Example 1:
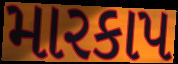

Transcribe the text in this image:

મારકાપ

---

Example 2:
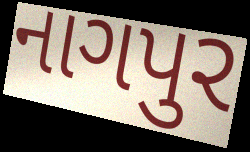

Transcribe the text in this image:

નાગપુર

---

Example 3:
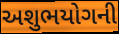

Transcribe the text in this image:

અશુભયોગની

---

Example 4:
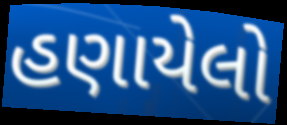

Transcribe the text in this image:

હણાયેલો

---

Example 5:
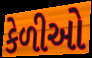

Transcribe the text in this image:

કેળીઓ